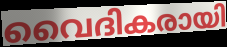
വൈദികരായി